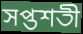
সপ্তশতী